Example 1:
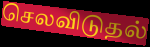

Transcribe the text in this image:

செலவிடுதல்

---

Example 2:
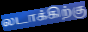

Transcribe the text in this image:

லடாக்கிற்கு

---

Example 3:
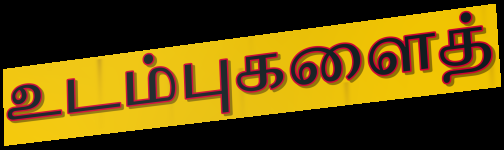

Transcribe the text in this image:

உடம்புகளைத்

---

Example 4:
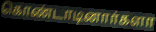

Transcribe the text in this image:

கொண்டாடினார்களா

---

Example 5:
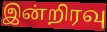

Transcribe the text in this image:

இன்றிரவு